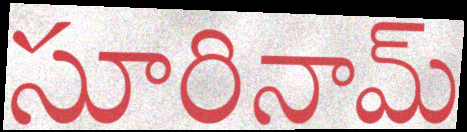
సూరినామ్